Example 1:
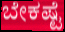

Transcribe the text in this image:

ಬೇಕಷ್ಟೆ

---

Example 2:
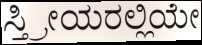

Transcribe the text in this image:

ಸ್ತ್ರೀಯರಲ್ಲಿಯೇ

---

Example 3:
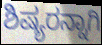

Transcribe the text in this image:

ಶಿಷ್ಯರನ್ನಾಗಿ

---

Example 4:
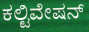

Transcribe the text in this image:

ಕಲ್ಟಿವೇಷನ್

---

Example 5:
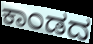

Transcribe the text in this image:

ಕಾಂಡದ